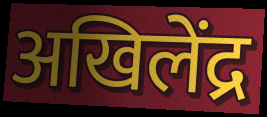
अखिलेंद्र